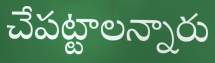
చేపట్టాలన్నారు